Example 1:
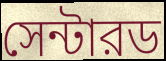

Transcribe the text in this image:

সেন্টারড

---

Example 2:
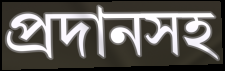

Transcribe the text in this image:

প্রদানসহ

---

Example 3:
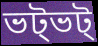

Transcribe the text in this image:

ভট্ভট্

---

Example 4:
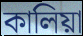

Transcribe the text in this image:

কালিয়া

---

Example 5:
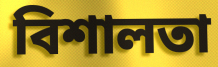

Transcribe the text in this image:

বিশালতা